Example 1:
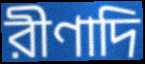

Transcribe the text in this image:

রীণাদি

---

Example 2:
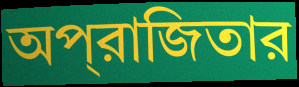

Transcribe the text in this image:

অপ্‌রাজিতার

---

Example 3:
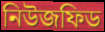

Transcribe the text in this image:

নিউজফিড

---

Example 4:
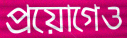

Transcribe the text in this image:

প্রয়োগেও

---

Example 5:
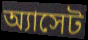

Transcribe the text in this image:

অ্যাসেট